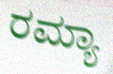
ರಮ್ಯಾ